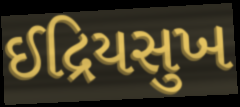
ઈદ્રિયસુખ